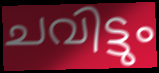
ചവിട്ടും